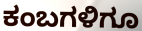
ಕಂಬಗಳಿಗೂ